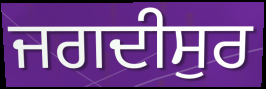
ਜਗਦੀਸੁਰ